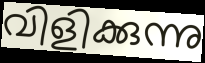
വിളിക്കുന്നു